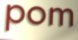
pom